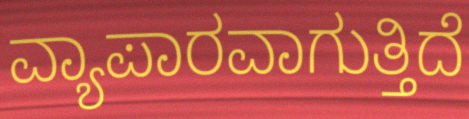
ವ್ಯಾಪಾರವಾಗುತ್ತಿದೆ